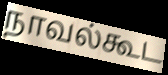
நாவல்கூட